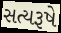
સત્યરૂષે